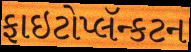
ફાઇટોપ્લૅન્કટન